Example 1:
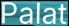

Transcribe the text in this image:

Palat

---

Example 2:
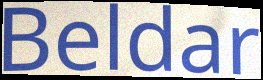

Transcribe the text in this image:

Beldar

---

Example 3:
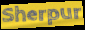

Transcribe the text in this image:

Sherpur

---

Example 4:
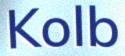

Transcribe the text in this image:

Kolb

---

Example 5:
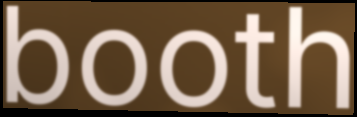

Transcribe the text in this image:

booth